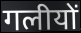
गलीयों